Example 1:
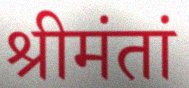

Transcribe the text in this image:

श्रीमंतां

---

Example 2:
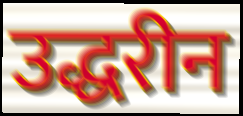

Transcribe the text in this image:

उद्धरीन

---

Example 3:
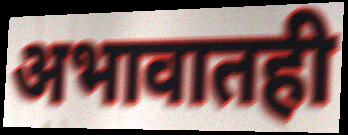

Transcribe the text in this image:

अभावातही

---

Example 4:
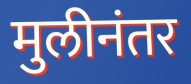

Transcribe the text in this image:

मुलीनंतर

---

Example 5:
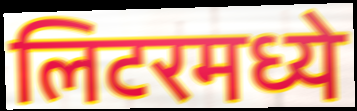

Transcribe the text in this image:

लिटरमध्ये